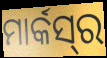
ମାର୍କସ୍‍ର